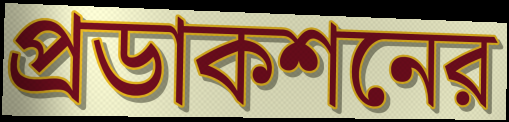
প্রডাকশনের